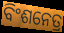
ବିଂଶନେତ୍ର